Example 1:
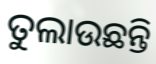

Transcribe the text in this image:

ତୁଲାଉଛନ୍ତି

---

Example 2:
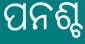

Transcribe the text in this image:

ପନଶ୍ଚ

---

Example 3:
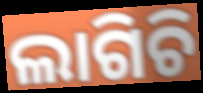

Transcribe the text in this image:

ଲାଗିଚି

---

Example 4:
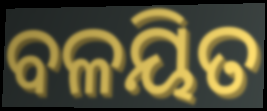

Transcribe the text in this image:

ବଳୟିତ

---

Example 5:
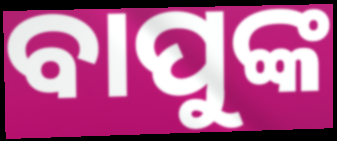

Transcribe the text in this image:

ବାପୁଙ୍କ